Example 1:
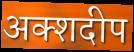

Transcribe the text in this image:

अक्शदीप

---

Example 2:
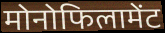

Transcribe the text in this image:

मोनोफिलामेंट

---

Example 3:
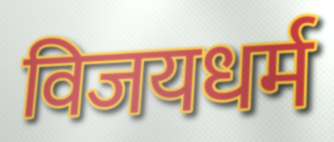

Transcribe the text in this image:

विजयधर्म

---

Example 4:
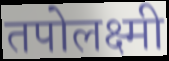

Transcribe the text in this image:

तपोलक्ष्मी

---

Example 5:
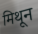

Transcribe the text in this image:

मिथून